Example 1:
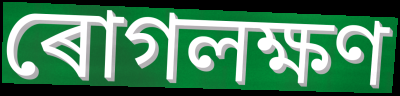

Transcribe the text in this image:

ৰোগলক্ষণ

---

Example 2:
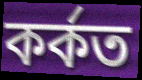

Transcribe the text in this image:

কৰ্কত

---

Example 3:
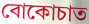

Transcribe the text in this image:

বোকোচাত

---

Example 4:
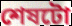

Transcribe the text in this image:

শেষটো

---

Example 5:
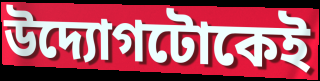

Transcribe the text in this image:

উদ্যোগটোকেই